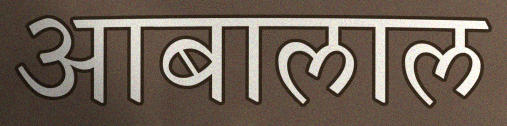
आबालाल